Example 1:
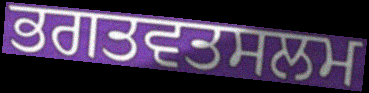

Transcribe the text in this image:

ਭਗਤਵਤਸਲਮ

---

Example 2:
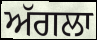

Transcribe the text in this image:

ਅੱਗਲਾ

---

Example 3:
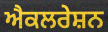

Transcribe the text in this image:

ਐਕਲਰੇਸ਼ਨ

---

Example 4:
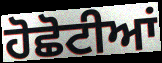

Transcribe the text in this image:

ਹੋਛੋਟੀਆਂ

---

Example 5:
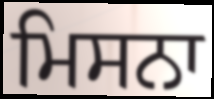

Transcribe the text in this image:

ਮਿਸਨਾ